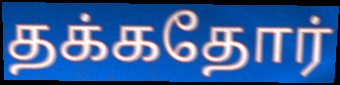
தக்கதோர்